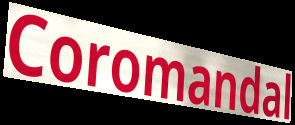
Coromandal